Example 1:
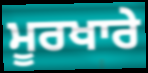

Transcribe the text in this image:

ਮੂਰਖਾਰੇ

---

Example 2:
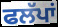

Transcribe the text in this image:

ਫਲੱਪਾਂ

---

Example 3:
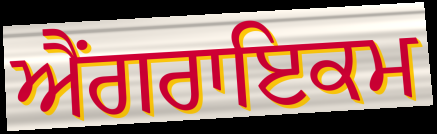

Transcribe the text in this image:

ਐਂਗਰਾਇਕਮ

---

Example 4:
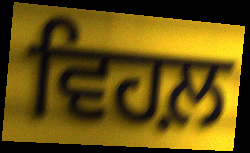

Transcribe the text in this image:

ਵਿਹਲ਼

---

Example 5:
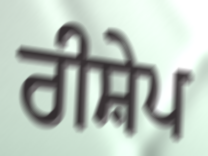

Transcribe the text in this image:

ਰੀਸ਼ੇਪ